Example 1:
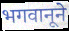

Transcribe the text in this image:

भगवानूने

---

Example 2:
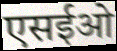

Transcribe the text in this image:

एसईओ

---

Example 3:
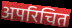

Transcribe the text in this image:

अपरिचित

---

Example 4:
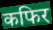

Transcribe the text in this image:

कफिर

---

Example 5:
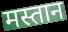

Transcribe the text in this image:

मस्तान